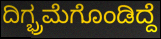
ದಿಗ್ಭ್ರಮೆಗೊಂಡಿದ್ದೆ